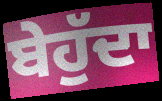
ਬੇਹੁੱਦਾ